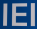
IEI